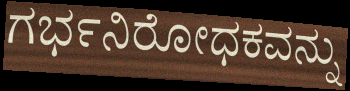
ಗರ್ಭನಿರೋಧಕವನ್ನು